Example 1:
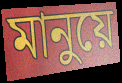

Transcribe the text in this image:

মানুয়ে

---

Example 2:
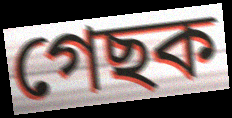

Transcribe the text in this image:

গেছক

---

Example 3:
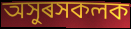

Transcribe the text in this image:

অসুৰসকলক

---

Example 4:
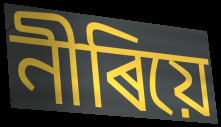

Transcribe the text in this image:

নীৰিয়ে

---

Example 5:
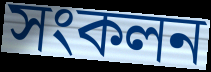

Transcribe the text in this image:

সংকলন